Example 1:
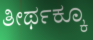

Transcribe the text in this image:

ತೀರ್ಥಕ್ಕೂ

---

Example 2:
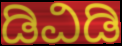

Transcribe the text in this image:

ಡಿವಿಡಿ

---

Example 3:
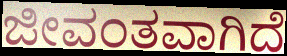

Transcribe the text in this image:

ಜೀವಂತವಾಗಿದೆ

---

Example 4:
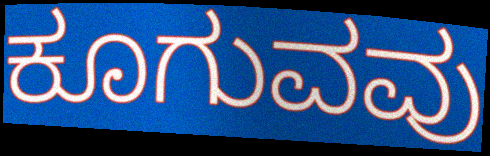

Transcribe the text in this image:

ಕೂಗುವವು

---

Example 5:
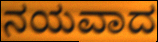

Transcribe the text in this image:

ನಯವಾದ